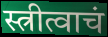
स्त्रीत्वाचं